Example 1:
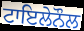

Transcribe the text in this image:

ਟਾਇਲੇਨੌਲ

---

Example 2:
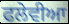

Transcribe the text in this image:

ਫਲੇਵੀਆ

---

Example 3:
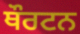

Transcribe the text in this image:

ਥੌਰਟਨ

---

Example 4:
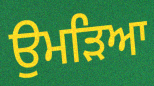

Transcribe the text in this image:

ਉਮੜਿਆ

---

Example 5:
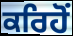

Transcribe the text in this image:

ਕਰਿਹੋਂ